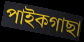
পাইকগাছা